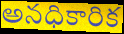
అనధికారిక